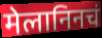
मेलानिनचं